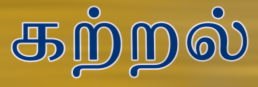
கற்றல்